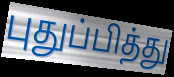
புதுப்பித்து